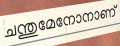
ചന്തുമേനോനാണ്